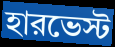
হারভেস্ট